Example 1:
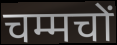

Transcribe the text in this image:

चम्मचों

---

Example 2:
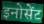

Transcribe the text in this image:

इनोसेंट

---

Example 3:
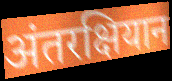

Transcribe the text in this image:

अंतरक्षियान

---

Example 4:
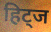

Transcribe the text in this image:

हिट्ज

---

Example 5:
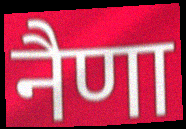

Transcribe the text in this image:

नैणा